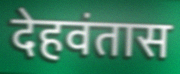
देहवंतास